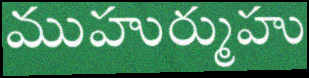
ముహుర్ముహు